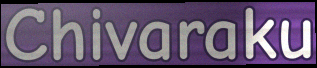
Chivaraku